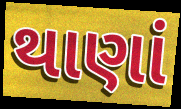
થાણાં